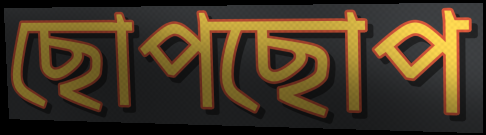
ছোপছোপ